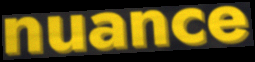
nuance